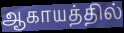
ஆகாயத்தில்